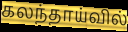
கலந்தாய்வில்